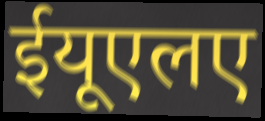
ईयूएलए